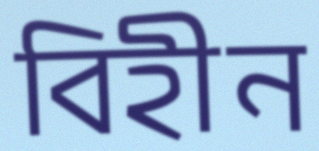
বিহীন